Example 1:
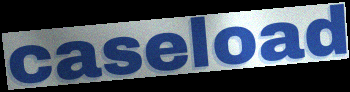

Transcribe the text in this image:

caseload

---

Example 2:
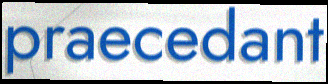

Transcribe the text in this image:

praecedant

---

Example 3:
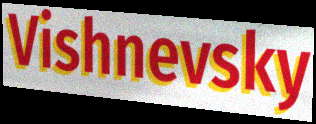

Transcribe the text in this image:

Vishnevsky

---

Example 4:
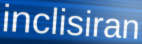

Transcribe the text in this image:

inclisiran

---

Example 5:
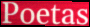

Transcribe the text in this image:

Poetas